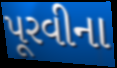
પૂરવીના